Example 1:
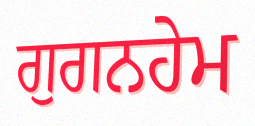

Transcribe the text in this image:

ਗੁਗਨਹੇਮ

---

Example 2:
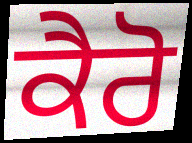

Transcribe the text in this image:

ਕੈਰੋ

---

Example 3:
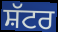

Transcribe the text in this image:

ਸ਼ੱਟਰ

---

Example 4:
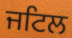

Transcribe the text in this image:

ਜਟਿਲ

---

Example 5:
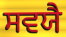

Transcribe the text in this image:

ਸਵਯੈ